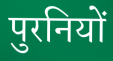
पुरनियों